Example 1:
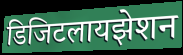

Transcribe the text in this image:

डिजिटलायझेशन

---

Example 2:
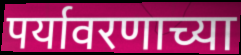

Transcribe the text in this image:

पर्यावरणाच्या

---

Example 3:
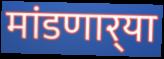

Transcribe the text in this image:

मांडणार्‍या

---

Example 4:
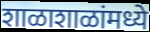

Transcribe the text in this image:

शाळाशाळांमध्ये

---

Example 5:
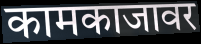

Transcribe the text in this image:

कामकाजावर